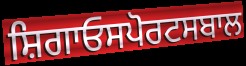
ਸ਼ਿਗਾਓਸਪੋਰਟਸਬਾਲ